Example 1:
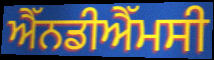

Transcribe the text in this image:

ਐੱਨਡੀਐੱਮਸੀ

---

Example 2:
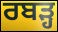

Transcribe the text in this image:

ਰਬੜ੍ਹ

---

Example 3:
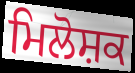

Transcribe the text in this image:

ਮਿਲੋਸ਼ਕ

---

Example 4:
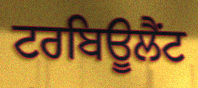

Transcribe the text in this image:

ਟਰਬਿਊਲੈਂਟ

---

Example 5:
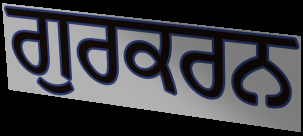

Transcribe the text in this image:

ਗੁਰਕਰਨ